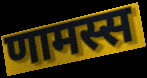
णामस्स